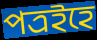
পত্ৰইহে